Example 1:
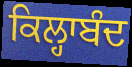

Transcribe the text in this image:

ਕਿਲ੍ਹਾਬੰਦ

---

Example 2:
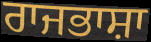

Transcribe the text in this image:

ਰਾਜਭਾਸ਼ਾ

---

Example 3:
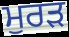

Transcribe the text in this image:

ਮੁਰੜ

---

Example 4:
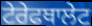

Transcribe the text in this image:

ਟੇਰੇਫਥਾਲੇਟ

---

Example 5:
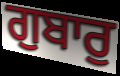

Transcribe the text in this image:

ਗੁਬਾਰੁ